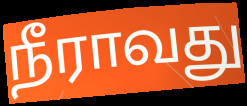
நீராவது